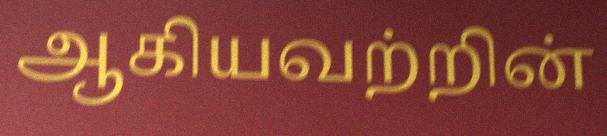
ஆகியவற்றின்